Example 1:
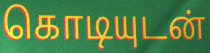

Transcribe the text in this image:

கொடியுடன்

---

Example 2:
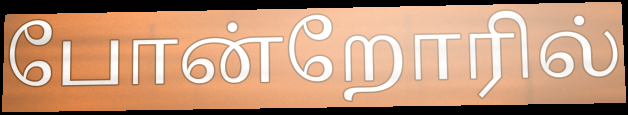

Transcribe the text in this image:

போன்றோரில்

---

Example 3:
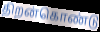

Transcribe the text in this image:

திறன்கொண்டு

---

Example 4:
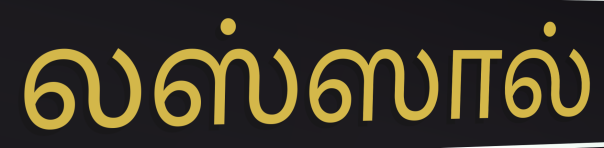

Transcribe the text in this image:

லஸ்ஸால்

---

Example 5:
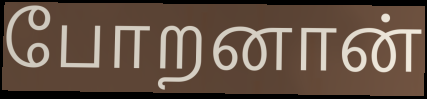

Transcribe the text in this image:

போறனான்